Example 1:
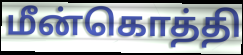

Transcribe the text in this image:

மீன்கொத்தி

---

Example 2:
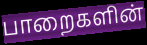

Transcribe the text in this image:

பாறைகளின்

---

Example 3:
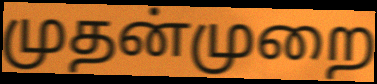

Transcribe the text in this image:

முதன்முறை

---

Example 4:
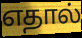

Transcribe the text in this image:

எதால்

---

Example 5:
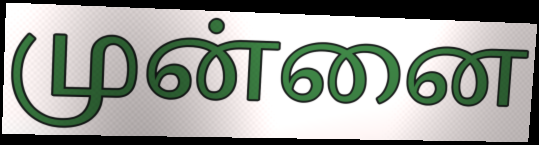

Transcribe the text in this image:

முன்னை